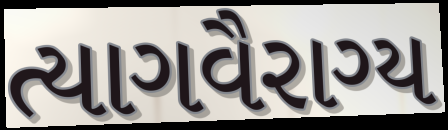
ત્યાગવૈરાગ્ય